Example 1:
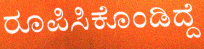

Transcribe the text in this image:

ರೂಪಿಸಿಕೊಂಡಿದ್ದೆ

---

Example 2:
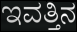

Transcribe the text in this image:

ಇವತ್ತಿನ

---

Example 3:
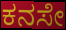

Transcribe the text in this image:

ಕನಸೇ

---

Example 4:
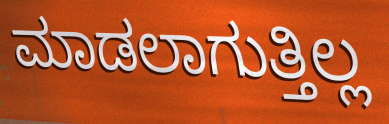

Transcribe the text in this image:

ಮಾಡಲಾಗುತ್ತಿಲ್ಲ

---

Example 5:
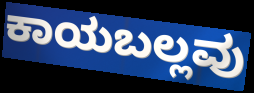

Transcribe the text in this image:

ಕಾಯಬಲ್ಲವು